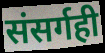
संसर्गही